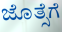
ಜೊತ್ಸೆಗೆ